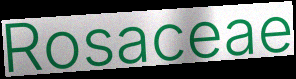
Rosaceae